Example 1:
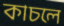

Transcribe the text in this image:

কাচলে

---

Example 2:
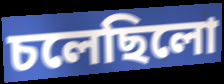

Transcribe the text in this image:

চলেছিলো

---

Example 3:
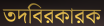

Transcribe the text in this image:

তদবিরকারক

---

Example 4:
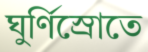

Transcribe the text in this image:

ঘুর্ণিস্রোতে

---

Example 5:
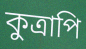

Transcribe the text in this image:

কুত্রাপি